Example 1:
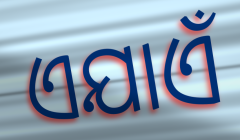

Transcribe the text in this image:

ଏଯାଏଁ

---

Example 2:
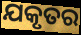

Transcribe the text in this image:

ଯକୃତର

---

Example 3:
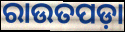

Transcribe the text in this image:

ରାଉତପଡ଼ା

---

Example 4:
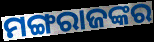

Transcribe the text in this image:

ମଙ୍ଗରାଜଙ୍କର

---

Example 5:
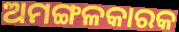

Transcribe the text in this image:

ଅମଙ୍ଗଳକାରକ